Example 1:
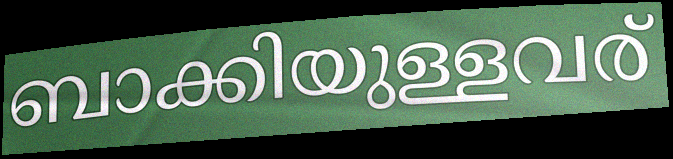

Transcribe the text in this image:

ബാക്കിയുള്ളവര്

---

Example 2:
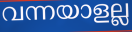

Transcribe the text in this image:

വന്നയാളല്ല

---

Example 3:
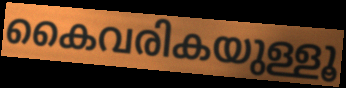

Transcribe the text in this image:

കൈവരികയുള്ളൂ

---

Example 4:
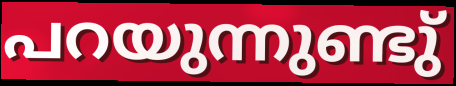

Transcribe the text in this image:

പറയുന്നുണ്ടു്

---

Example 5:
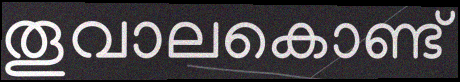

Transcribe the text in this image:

തൂവാലകൊണ്ട്